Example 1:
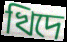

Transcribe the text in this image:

খিদে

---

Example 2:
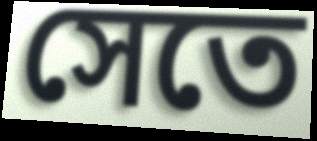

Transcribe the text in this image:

সেতে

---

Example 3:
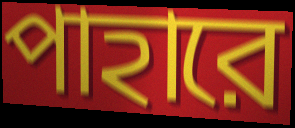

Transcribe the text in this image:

পাহারে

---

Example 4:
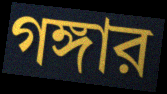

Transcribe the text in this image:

গঙ্গার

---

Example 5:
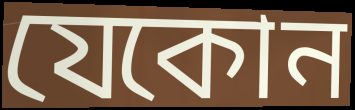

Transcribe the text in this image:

যেকোন